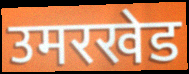
उमरखेड